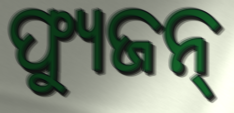
ଫ୍ୟୁଜନ୍